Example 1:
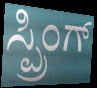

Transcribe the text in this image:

ಸ್ಪ್ರಿಂಗ್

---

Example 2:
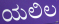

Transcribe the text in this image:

ಯಲಿಲ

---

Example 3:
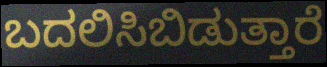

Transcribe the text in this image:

ಬದಲಿಸಿಬಿಡುತ್ತಾರೆ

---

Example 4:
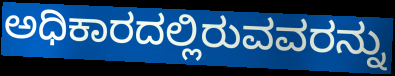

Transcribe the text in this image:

ಅಧಿಕಾರದಲ್ಲಿರುವವರನ್ನು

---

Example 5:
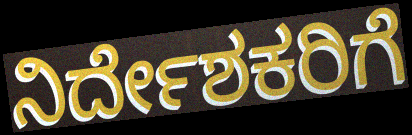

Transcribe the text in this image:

ನಿರ್ದೇಶಕರಿಗೆ